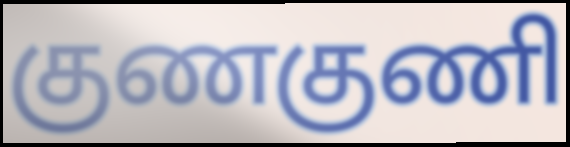
குணகுணி